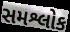
સમશ્લોક